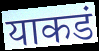
याकडं